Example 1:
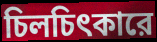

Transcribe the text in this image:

চিলচিৎকারে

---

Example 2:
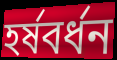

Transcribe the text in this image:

হর্ষবর্ধন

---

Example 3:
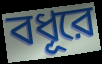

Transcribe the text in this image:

বধূরে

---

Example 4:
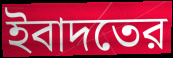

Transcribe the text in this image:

ইবাদতের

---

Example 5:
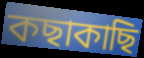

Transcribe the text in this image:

কছাকাছি